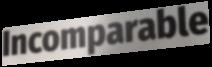
Incomparable